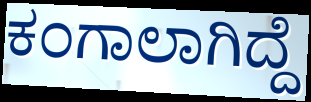
ಕಂಗಾಲಾಗಿದ್ದೆ